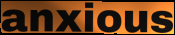
anxious